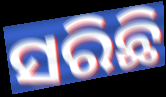
ସରିଛି